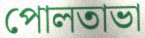
পোলতাভা